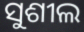
ସୁଶୀଲ